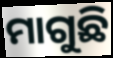
ମାଗୁଛି